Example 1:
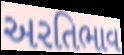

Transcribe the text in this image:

અરતિભાવ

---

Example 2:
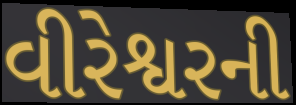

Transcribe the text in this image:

વીરેશ્વરની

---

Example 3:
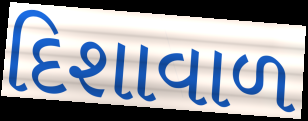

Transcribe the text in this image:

દિશાવાળ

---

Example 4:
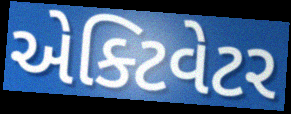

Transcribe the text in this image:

એક્ટિવેટર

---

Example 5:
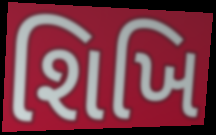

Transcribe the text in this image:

શિખિ